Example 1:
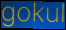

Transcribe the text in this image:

gokul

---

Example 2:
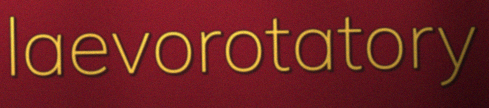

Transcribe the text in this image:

laevorotatory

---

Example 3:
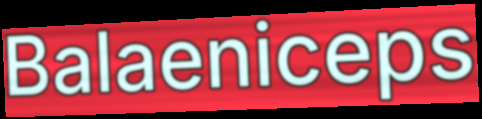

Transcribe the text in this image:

Balaeniceps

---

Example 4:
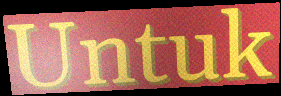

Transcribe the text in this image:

Untuk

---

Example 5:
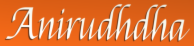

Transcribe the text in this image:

Anirudhdha